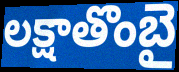
లక్షాతొంబై